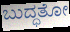
ಬುದ್ಧತೋ